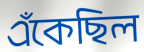
এঁকেছিল